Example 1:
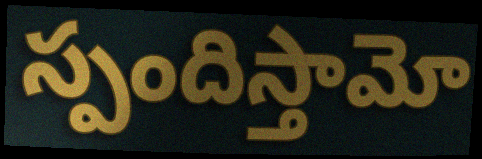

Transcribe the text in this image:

స్పందిస్తామో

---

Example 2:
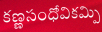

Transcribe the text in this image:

కణ్ణసంధోవికమ్పి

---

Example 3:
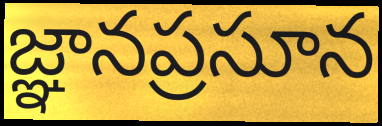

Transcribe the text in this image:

జ్ఞానప్రసూన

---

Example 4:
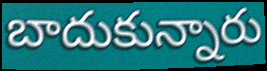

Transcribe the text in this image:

బాదుకున్నారు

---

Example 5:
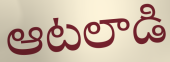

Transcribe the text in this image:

ఆటలాడి